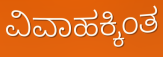
ವಿವಾಹಕ್ಕಿಂತ